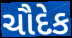
ચૌદેક